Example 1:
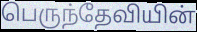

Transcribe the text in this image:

பெருந்தேவியின்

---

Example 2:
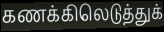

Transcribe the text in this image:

கணக்கிலெடுத்துக்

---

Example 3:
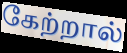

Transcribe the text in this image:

கேற்றால்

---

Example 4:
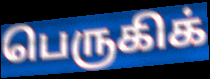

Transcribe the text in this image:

பெருகிக்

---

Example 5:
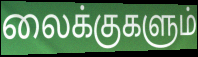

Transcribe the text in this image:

லைக்குகளும்